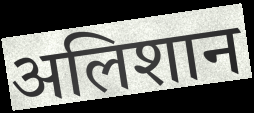
अलिशान